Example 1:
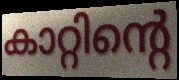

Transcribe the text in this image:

കാറ്റിന്റെ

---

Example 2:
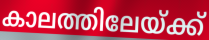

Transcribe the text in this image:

കാലത്തിലേയ്ക്ക്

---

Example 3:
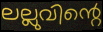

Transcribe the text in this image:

ലല്ലുവിന്റെ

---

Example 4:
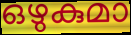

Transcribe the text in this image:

ഒഴുകുമാ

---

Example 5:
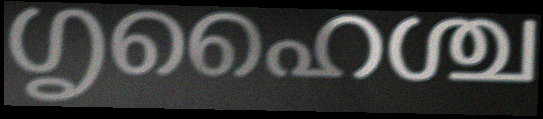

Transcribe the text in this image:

ഗൃഹൈശ്ച